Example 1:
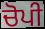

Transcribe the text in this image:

ਚੋਪੀ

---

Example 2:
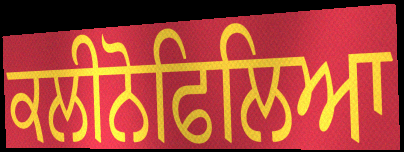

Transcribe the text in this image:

ਕਲੀਨੋਫਿਲਿਆ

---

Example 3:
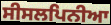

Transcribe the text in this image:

ਸੀਸਲਪਿਨੀਆ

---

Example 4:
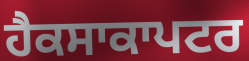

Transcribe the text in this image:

ਹੈਕਸਾਕਾਪਟਰ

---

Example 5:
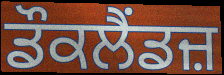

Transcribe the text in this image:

ਡੌਕਲੈਂਡਜ਼